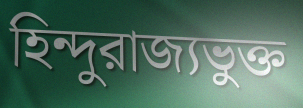
হিন্দুরাজ্যভুক্ত